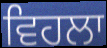
ਵਿਹਲਾ